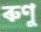
ৰুণু